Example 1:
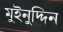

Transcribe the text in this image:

মুইনুদ্দিন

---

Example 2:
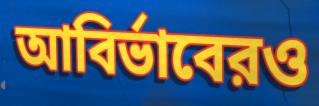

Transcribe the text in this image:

আবির্ভাবেরও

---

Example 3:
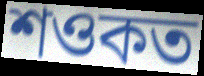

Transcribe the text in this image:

শওকত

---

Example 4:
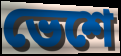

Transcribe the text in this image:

ভেশে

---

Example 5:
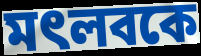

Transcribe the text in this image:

মৎলবকে